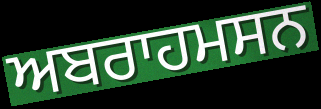
ਅਬਰਾਹਮਸਨ